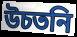
উচতনি